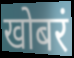
खोबरं